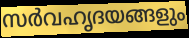
സർവഹൃദയങ്ങളും